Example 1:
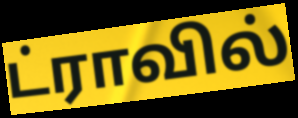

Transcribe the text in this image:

ட்ராவில்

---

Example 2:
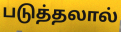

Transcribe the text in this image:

படுத்தலால்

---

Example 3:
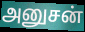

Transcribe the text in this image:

அனுசன்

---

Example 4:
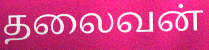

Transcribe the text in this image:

தலைவன்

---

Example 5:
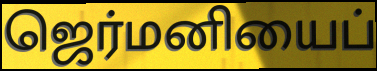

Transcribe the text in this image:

ஜெர்மனியைப்